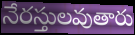
నేరస్తులవుతారు